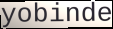
yobinde